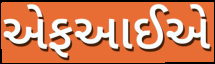
એફઆઈએ